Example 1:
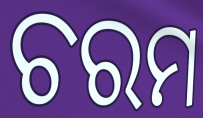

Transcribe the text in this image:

ଚରମ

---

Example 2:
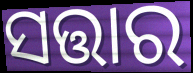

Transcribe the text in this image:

ସତ୍ତାର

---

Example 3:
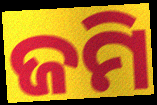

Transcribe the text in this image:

ଜମି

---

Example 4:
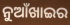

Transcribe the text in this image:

ନୁଆଁଖାଇର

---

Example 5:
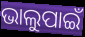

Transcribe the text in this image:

ଭାଲୁପାଇଁ